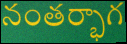
నంతర్భాగ